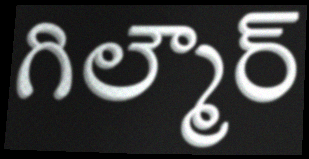
గిల్మౌర్